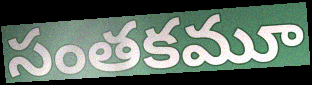
సంతకమూ